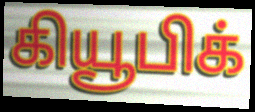
கியூபிக்